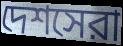
দেশসেরা